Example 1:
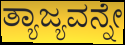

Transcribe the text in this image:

ತ್ಯಾಜ್ಯವನ್ನೇ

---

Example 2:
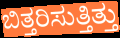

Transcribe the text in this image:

ಬಿತ್ತರಿಸುತ್ತಿತ್ತು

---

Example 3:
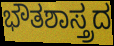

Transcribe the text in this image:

ಭೌತಶಾಸ್ತ್ರದ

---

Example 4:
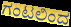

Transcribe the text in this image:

ಗಂಟಲಿಂದ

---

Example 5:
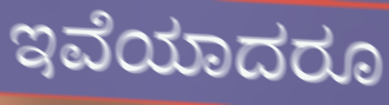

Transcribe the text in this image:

ಇವೆಯಾದರೂ